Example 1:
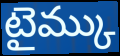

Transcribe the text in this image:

టైమ్కు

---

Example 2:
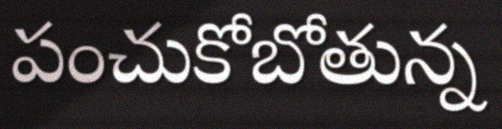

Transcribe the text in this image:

పంచుకోబోతున్న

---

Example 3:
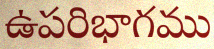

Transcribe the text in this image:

ఉపరిభాగము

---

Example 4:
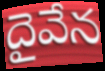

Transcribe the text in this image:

దైవేన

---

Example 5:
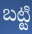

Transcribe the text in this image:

బట్టి